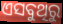
ଏସବୁଥିରୁ